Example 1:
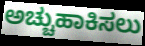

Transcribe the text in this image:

ಅಚ್ಚುಹಾಕಿಸಲು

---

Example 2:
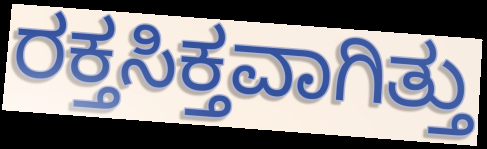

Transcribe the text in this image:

ರಕ್ತಸಿಕ್ತವಾಗಿತ್ತು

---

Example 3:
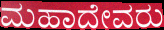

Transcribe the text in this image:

ಮಹಾದೇವರು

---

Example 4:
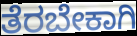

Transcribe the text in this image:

ತೆರಬೇಕಾಗಿ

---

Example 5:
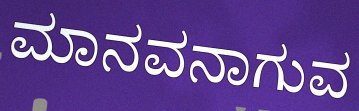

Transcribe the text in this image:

ಮಾನವನಾಗುವ